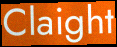
Claight